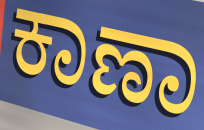
ಕಾಣಾ